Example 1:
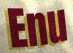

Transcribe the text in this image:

Enu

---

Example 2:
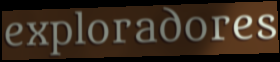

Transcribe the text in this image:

exploradores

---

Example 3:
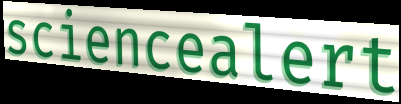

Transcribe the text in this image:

sciencealert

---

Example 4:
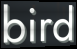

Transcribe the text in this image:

bird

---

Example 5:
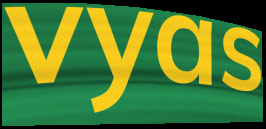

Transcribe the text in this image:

vyas